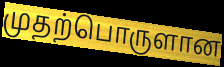
முதற்பொருளான